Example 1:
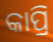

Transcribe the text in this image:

କାପ୍ରି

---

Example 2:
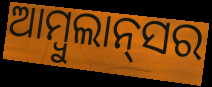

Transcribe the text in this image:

ଆମ୍ବୁଲାନ୍‌ସର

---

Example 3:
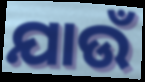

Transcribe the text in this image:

ଯାଉଁ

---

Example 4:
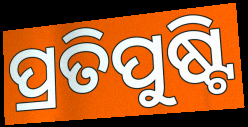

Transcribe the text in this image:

ପ୍ରତିପୁଷ୍ଟି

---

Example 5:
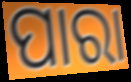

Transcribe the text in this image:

ପାରା